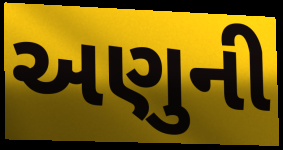
અણુની